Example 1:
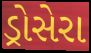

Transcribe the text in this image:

ડ્રોસેરા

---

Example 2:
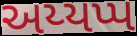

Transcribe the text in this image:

અય્યપ્પ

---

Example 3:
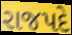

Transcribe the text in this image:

રાજપદે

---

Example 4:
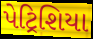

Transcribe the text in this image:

પેટ્રિશિયા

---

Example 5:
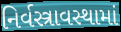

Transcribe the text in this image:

નિર્વસ્ત્રાવસ્થામાં